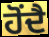
ਹੋਂਦੈ